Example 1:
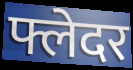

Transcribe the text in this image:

फ्लेदर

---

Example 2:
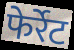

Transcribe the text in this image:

फेर्रेट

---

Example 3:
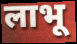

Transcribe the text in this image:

लाभू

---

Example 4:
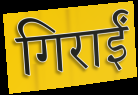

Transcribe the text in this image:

गिराईं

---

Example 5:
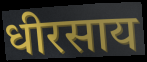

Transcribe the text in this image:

धीरसाय